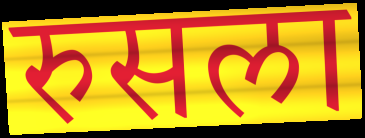
रुसला